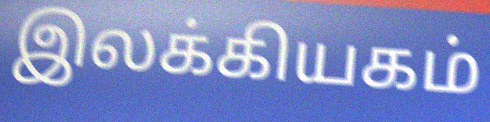
இலக்கியகம்